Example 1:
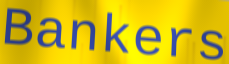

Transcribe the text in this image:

Bankers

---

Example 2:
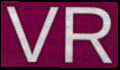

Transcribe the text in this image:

VR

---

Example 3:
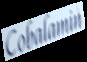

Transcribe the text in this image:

Cobalamin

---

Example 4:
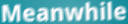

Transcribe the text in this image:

Meanwhile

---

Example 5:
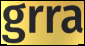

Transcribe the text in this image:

grra